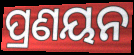
ପ୍ରଣୟନ